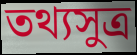
তথ্যসুত্র